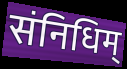
संनिधिम्